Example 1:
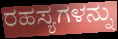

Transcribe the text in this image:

ರಹಸ್ಯಗಳನ್ನು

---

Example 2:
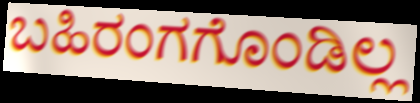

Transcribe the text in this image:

ಬಹಿರಂಗಗೊಂಡಿಲ್ಲ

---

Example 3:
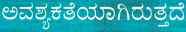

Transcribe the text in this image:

ಅವಶ್ಯಕತೆಯಾಗಿರುತ್ತದೆ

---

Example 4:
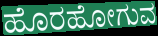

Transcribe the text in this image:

ಹೊರಹೋಗುವ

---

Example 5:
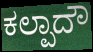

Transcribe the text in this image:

ಕಲ್ಪಾದೌ